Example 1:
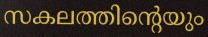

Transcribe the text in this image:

സകലത്തിന്റെയും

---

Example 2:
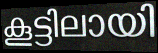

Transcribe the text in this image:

കൂട്ടിലായി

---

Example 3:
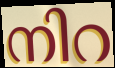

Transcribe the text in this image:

നിറ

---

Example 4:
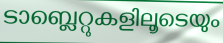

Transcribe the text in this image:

ടാബ്ലെറ്റുകളിലൂടെയും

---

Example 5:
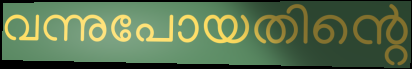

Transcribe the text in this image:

വന്നുപോയതിന്റെ